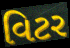
વિટર